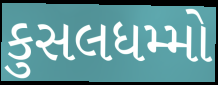
કુસલધમ્મો